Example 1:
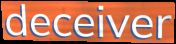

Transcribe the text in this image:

deceiver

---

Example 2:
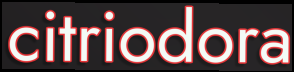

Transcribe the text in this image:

citriodora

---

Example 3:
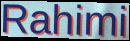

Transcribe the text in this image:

Rahimi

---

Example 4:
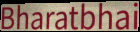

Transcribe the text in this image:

Bharatbhai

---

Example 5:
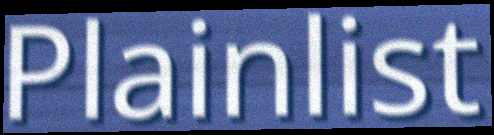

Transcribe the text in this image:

Plainlist